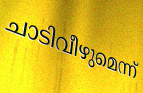
ചാടിവീഴുമെന്ന്